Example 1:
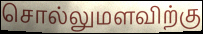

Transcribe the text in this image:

சொல்லுமளவிற்கு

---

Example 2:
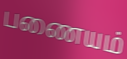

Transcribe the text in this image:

பணையம்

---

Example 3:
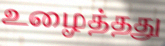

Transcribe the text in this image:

உழைத்தது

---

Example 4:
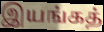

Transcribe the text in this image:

இயங்கத்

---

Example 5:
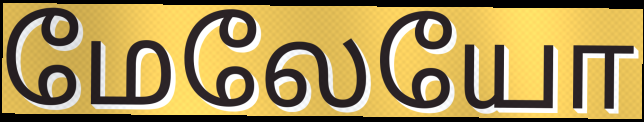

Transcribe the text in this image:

மேலேயோ